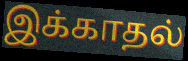
இக்காதல்